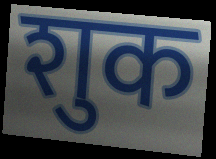
शुक